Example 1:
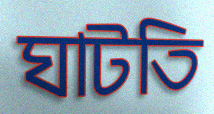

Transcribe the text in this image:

ঘাটতি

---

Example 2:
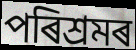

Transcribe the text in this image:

পৰিশ্ৰমৰ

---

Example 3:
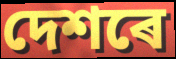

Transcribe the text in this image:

দেশৰে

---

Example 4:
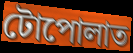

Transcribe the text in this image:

টোপোলাত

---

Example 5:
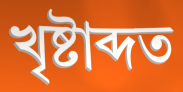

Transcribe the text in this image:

খৃষ্টাব্দত